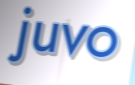
juvo